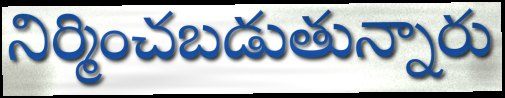
నిర్మించబడుతున్నారు